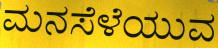
ಮನಸೆಳೆಯುವ